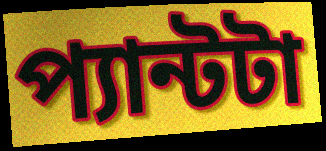
প্যান্টটা